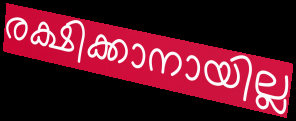
രക്ഷിക്കാനായില്ല